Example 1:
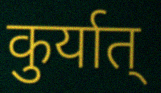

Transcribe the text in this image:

कुर्यात्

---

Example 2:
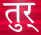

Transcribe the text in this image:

तुर्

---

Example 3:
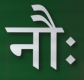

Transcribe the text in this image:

नौः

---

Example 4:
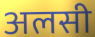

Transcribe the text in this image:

अलसी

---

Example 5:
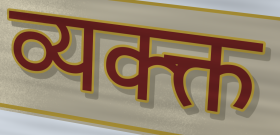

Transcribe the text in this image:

व्यक्क्त